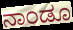
ನಾಂಡೂ